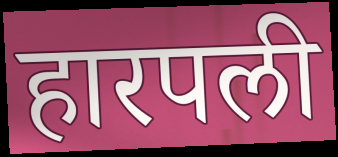
हारपली